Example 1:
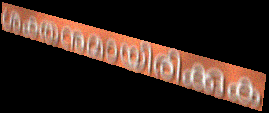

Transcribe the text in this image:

ശക്തനുമായിരിക്കുക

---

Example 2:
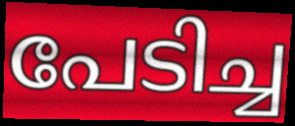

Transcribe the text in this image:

പേടിച്ച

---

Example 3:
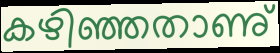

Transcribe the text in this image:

കഴിഞ്ഞതാണു്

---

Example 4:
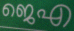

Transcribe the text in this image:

ജെഎ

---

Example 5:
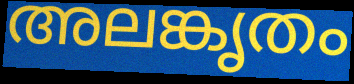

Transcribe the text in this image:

അലങ്കൃതം